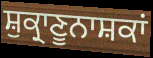
ਸ਼ੁਕ੍ਰਾਣੂਨਾਸ਼ਕਾਂ